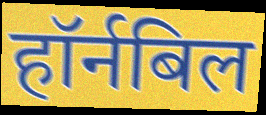
हॉर्नबिल